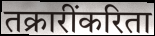
तक्रारींकरिता